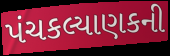
પંચકલ્યાણકની